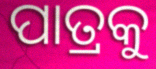
ପାତ୍ରକୁ